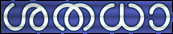
ശതധാ